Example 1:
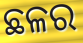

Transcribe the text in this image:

ଛଳର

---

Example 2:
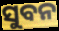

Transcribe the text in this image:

ସୁବନ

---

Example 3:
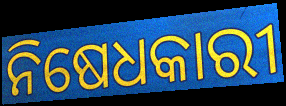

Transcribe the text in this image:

ନିଷେଧକାରୀ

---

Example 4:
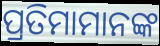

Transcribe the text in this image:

ପ୍ରତିମାମାନଙ୍କ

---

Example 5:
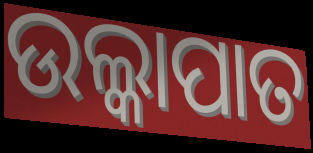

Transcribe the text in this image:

ଉଲ୍କାପାତ